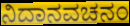
ನಿದಾನವಚನಂ